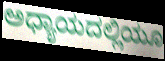
ಅಧ್ಯಾಯದಲ್ಲಿಯೂ